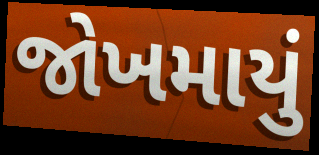
જોખમાયું